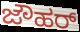
ಜೌಹರ್